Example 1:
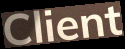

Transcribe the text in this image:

Client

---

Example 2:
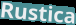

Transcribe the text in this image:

Rustica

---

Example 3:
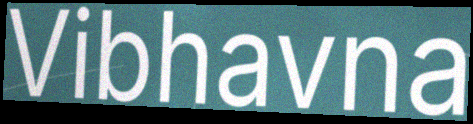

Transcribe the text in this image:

Vibhavna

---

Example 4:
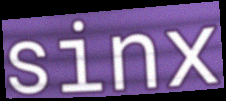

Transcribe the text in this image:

sinx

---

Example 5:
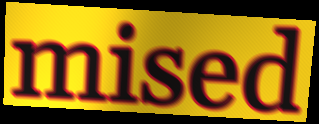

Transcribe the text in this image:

mised